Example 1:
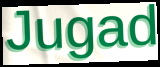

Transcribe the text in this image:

Jugad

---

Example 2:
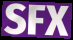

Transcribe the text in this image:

SFX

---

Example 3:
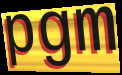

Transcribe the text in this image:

pgm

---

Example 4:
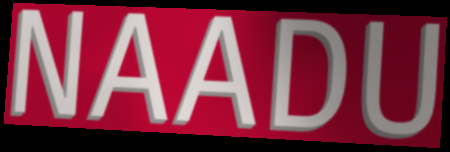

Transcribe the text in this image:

NAADU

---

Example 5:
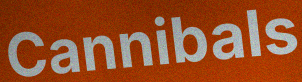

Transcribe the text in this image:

Cannibals